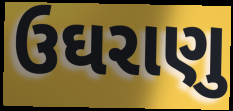
ઉઘરાણુ